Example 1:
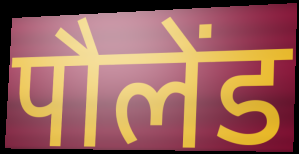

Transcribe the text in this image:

पौलेंड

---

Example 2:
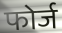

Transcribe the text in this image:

फोर्ज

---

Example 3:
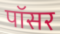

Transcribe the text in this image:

पॉसर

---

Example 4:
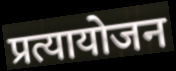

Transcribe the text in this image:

प्रत्यायोजन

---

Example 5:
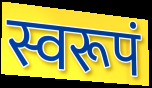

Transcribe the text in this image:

स्वरूपं